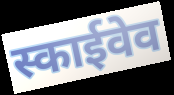
स्काईवेव